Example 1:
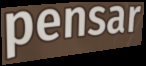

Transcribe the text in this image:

pensar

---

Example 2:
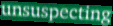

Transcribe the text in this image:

unsuspecting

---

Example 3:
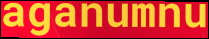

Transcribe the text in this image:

aganumnu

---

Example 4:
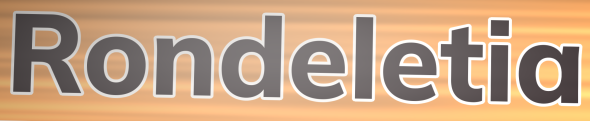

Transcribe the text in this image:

Rondeletia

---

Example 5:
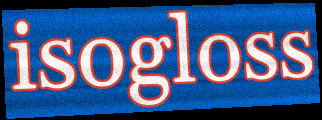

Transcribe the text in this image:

isogloss